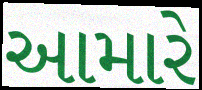
આમારે